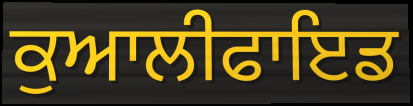
ਕੁਆਲੀਫਾਇਡ